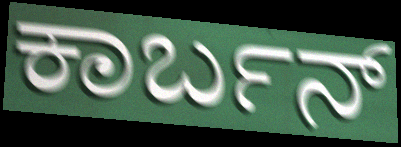
ಕಾರ್ಬನ್